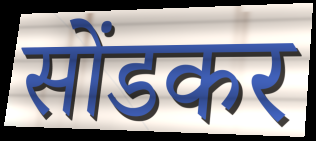
सोंडकर